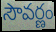
సౌవర్ణం